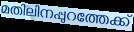
മതിലിനപ്പുറത്തേക്ക്